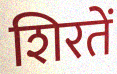
शिरतें